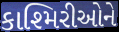
કાશ્મિરીઓને